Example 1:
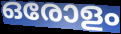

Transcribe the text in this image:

ഒരോളം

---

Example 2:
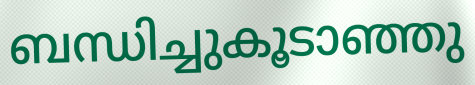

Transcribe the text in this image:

ബന്ധിച്ചുകൂടാഞ്ഞു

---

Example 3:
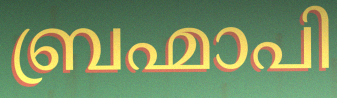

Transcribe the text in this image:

ബ്രഹ്മാപി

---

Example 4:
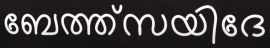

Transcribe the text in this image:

ബേത്ത്സയിദേ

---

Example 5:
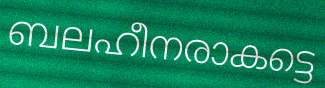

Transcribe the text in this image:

ബലഹീനരാകട്ടെ